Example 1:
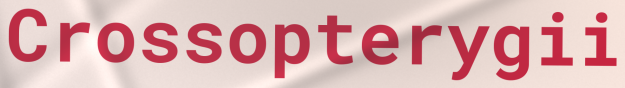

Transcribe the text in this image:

Crossopterygii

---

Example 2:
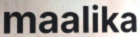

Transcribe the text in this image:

maalika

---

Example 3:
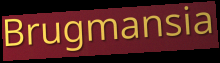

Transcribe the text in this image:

Brugmansia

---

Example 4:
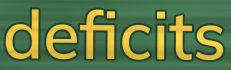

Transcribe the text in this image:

deficits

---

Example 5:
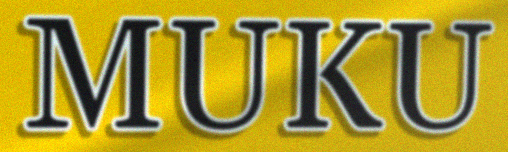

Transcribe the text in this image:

MUKU